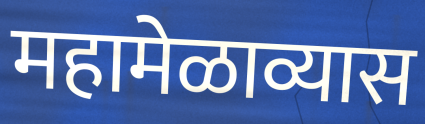
महामेळाव्यास